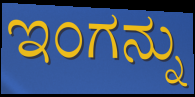
ಇಂಗನ್ನು